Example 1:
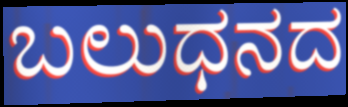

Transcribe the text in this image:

ಬಲುಧನದ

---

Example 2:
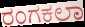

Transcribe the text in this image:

ರಂಗಕಲಾ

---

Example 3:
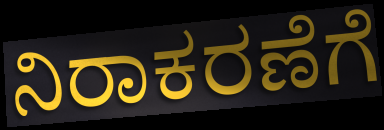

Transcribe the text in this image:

ನಿರಾಕರಣೆಗೆ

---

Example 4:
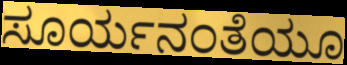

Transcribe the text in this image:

ಸೂರ್ಯನಂತೆಯೂ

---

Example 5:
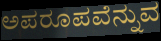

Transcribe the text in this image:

ಅಪರೂಪವೆನ್ನುವ